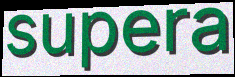
supera